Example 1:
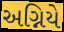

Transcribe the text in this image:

અગ્નિયે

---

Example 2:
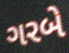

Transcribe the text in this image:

ગરબે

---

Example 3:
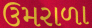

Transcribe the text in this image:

ઉમરાળા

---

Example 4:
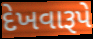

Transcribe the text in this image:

દેખવારૂપે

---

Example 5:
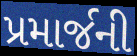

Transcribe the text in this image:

પ્રમાર્જની